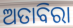
ଅତାବିରା